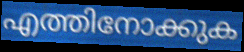
എത്തിനോക്കുക